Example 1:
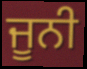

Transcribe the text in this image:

ਜੂਨੀ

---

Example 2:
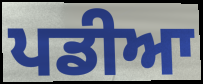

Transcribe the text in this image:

ਪਡੀਆ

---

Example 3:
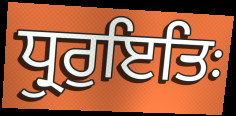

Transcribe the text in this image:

ਧ੍ਰੁਰੁਇਤਿਃ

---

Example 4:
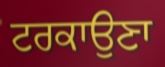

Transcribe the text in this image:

ਟਰਕਾਉਣਾ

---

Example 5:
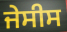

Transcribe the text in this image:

ਜੇਸੀਸ